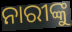
ନାରୀଙ୍କୁ